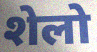
शेलो